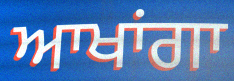
ਆਖਾਂਗਾ